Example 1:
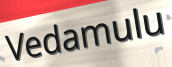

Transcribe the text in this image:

Vedamulu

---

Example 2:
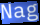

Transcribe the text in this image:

Nag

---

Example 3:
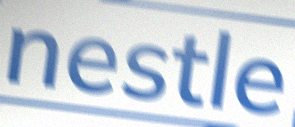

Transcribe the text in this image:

nestle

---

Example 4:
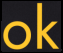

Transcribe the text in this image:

ok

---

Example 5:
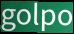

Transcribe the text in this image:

golpo